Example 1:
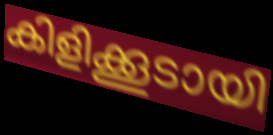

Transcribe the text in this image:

കിളിക്കൂടായി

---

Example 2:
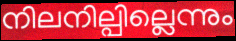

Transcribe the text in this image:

നിലനില്പില്ലെന്നും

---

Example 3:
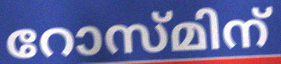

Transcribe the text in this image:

റോസ്മിന്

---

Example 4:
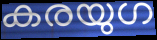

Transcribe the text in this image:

കരയുഗ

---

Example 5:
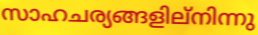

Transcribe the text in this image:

സാഹചര്യങ്ങളില്നിന്നു